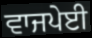
ਵਾਜਪੇਈ